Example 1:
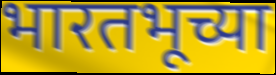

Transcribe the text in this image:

भारतभूच्या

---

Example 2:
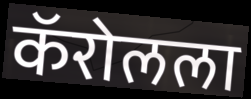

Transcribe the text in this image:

कॅरोलला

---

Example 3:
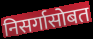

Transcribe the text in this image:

निसर्गासोबत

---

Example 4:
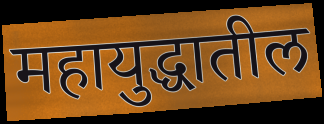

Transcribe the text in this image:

महायुद्धातील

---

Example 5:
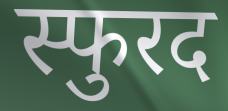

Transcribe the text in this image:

स्फुरद